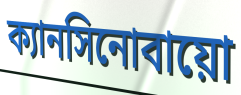
ক্যানসিনোবায়ো